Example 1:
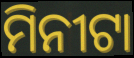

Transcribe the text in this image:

ମିନୀଟା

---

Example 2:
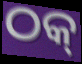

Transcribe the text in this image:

ଠକ୍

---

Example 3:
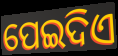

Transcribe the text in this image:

ପେଇଦିଏ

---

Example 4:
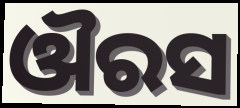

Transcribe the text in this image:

ଔରସ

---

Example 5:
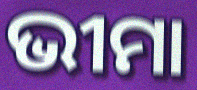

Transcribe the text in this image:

ଭୀମା